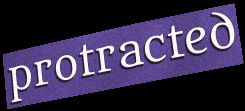
protracted